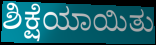
ಶಿಕ್ಷೆಯಾಯಿತು